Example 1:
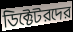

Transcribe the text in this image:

ডিক্টেটরদের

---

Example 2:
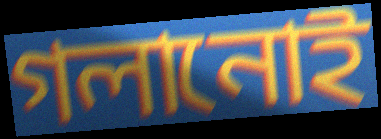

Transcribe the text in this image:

গলানোই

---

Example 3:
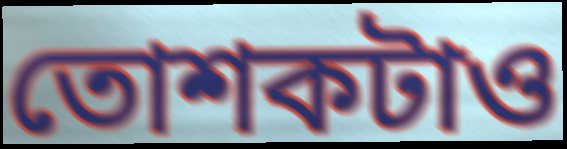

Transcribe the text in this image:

তোশকটাও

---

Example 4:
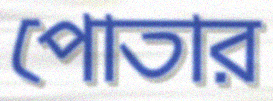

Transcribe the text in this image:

পোতার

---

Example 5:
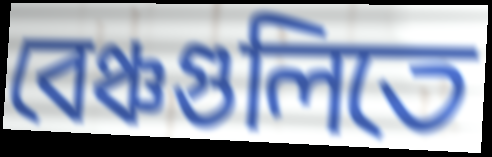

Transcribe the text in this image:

বেঞ্চগুলিতে